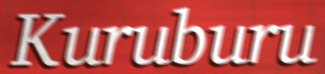
Kuruburu